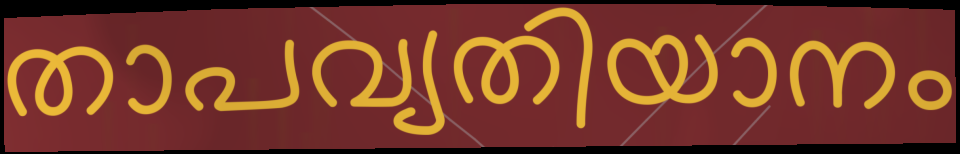
താപവ്യതിയാനം